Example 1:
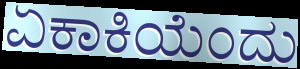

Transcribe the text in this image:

ಏಕಾಕಿಯೆಂದು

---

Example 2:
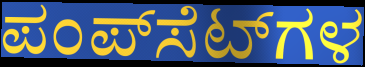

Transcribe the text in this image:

ಪಂಪ್‌ಸೆಟ್‌ಗಳ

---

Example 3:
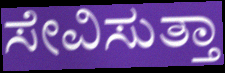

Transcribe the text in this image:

ಸೇವಿಸುತ್ತಾ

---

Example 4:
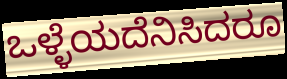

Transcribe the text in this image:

ಒಳ್ಳೆಯದೆನಿಸಿದರೂ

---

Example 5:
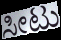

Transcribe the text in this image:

ಸೀಟು